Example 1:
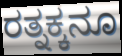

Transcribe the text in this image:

ರತ್ನಕ್ಕನೂ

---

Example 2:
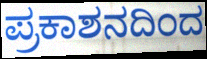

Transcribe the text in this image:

ಪ್ರಕಾಶನದಿಂದ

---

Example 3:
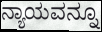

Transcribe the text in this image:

ನ್ಯಾಯವನ್ನೂ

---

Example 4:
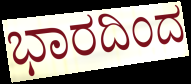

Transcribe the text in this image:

ಭಾರದಿಂದ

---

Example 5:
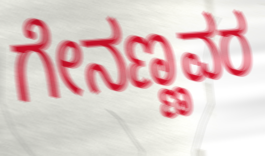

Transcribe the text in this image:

ಗೇನಣ್ಣವರ